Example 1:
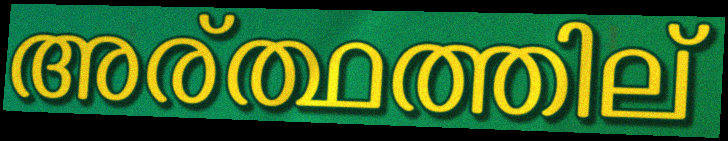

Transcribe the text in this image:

അര്ത്ഥത്തില്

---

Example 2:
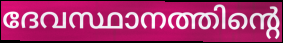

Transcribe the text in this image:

ദേവസ്ഥാനത്തിന്റെ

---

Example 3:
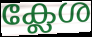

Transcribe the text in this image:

ക്ലേശ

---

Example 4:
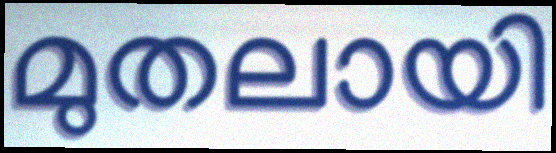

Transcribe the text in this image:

മുതലായി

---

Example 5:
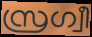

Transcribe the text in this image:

സ്രഗ്വീ